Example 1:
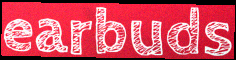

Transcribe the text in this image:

earbuds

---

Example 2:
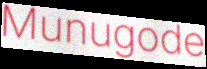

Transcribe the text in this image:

Munugode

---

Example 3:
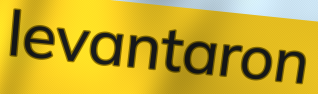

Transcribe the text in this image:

levantaron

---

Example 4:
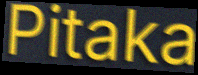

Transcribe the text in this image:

Pitaka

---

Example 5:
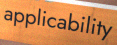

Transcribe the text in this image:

applicability